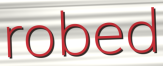
robed